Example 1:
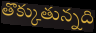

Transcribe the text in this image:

తొక్కుతున్నది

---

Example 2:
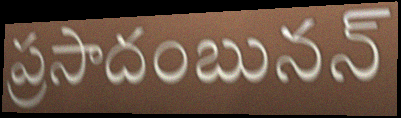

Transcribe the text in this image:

ప్రసాదంబునన్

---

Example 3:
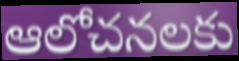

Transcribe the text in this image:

ఆలోచనలకు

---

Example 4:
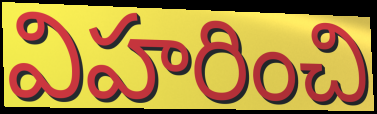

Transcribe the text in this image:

విహరించి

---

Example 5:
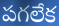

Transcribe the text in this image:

పగలేక